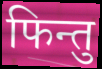
फिन्तु